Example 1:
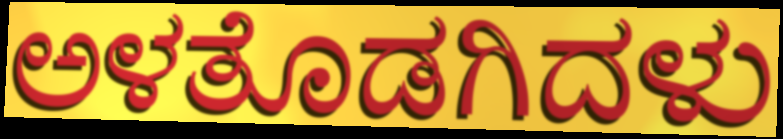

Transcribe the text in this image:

ಅಳತೊಡಗಿದಳು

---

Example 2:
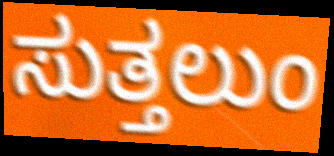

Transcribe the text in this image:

ಸುತ್ತಲುಂ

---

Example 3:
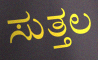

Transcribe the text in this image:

ಸುತ್ತಲ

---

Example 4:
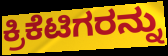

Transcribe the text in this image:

ಕ್ರಿಕೆಟಿಗರನ್ನು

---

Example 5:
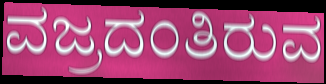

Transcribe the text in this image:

ವಜ್ರದಂತಿರುವ